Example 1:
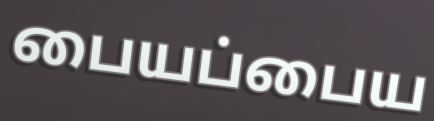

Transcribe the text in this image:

பையப்பைய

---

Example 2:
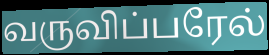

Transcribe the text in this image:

வருவிப்பரேல்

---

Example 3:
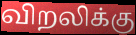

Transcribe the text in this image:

விறலிக்கு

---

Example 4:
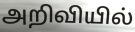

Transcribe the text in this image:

அறிவியில்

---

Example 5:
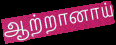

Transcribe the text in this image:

ஆற்றானாய்